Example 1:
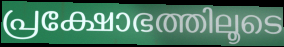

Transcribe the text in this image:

പ്രക്ഷോഭത്തിലൂടെ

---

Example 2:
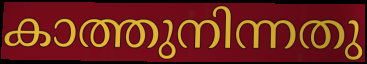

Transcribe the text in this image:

കാത്തുനിന്നതു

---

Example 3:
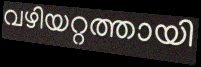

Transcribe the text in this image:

വഴിയറ്റത്തായി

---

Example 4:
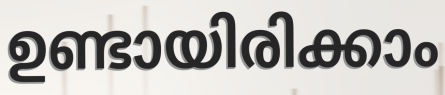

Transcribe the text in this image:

ഉണ്ടായിരിക്കാം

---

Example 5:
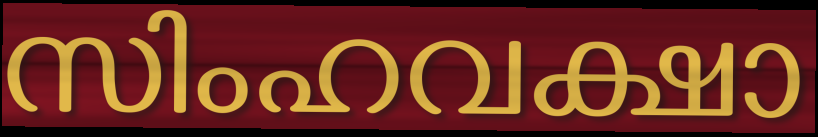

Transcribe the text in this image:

സിംഹവക്ഷാ